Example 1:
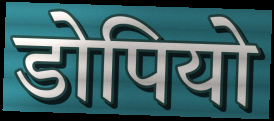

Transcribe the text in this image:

डोपियो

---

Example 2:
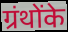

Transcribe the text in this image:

ग्रंथोंके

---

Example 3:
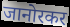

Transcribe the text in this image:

जानोरकर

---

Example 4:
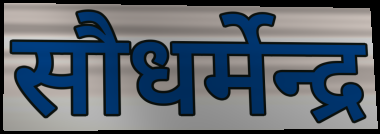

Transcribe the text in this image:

सौधर्मेन्द्र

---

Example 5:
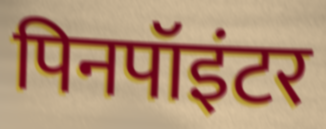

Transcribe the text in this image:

पिनपॉइंटर